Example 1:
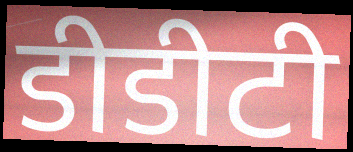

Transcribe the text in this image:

डीडीटी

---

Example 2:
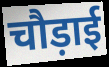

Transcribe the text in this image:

चौड़ाई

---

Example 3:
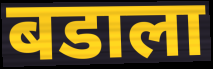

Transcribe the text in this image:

बडाला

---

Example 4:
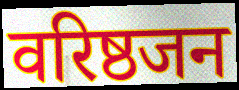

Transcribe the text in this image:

वरिष्ठजन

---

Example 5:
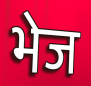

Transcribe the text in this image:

भेज